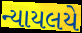
ન્યાયલયે